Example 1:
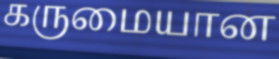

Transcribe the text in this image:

கருமையான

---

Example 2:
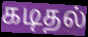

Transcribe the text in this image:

கடிதல்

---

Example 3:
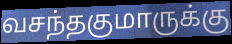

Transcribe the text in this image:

வசந்தகுமாருக்கு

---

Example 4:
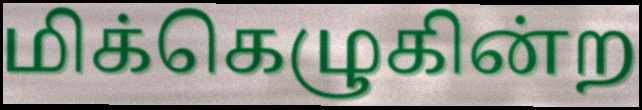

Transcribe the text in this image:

மிக்கெழுகின்ற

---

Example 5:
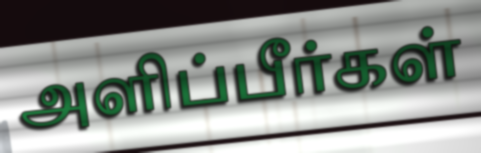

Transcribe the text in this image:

அளிப்பீர்கள்